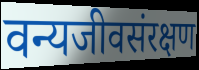
वन्यजीवसंरक्षण